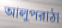
আলুপরাঠা